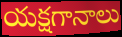
యక్షగానాలు